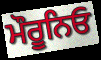
ਮੌਰੂਨਿਓ